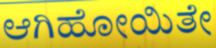
ಆಗಿಹೋಯಿತೇ